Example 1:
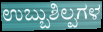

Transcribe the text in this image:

ಉಬ್ಬುಶಿಲ್ಪಗಳ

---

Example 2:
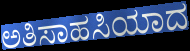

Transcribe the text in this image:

ಅತಿಸಾಹಸಿಯಾದ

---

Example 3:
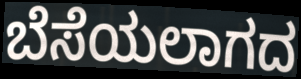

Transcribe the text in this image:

ಬೆಸೆಯಲಾಗದ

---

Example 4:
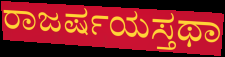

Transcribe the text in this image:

ರಾಜರ್ಷಯಸ್ತಥಾ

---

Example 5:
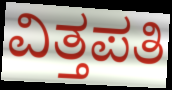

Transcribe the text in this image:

ವಿತ್ತಪತಿ